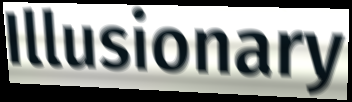
Illusionary